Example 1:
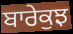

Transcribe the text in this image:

ਬਾਰੇਕੁਝ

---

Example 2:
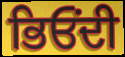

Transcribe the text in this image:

ਭਿਓਂਦੀ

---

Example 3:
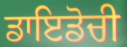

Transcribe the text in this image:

ਡਾਇਡੋਚੀ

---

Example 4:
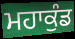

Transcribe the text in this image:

ਮਹਾਕੁੰਡ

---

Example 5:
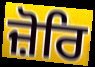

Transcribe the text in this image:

ਜ਼ੋਰਿ